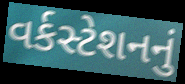
વર્કસ્ટેશનનું